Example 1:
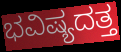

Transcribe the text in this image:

ಭವಿಷ್ಯದತ್ತ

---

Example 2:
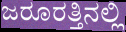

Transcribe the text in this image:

ಜರೂರತ್ತಿನಲ್ಲಿ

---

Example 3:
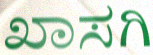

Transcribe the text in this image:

ಖಾಸಗಿ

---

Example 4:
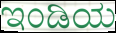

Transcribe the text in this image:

ಇಂಡಿಯ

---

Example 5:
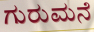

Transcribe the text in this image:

ಗುರುಮನೆ